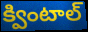
క్వింటాల్